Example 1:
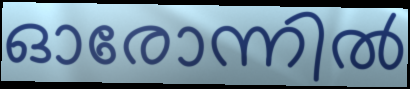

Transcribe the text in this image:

ഓരോന്നിൽ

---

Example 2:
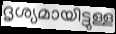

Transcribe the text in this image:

ദൃശ്യമായിട്ടുള്ള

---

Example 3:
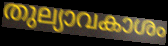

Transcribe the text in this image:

തുല്യാവകാശം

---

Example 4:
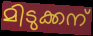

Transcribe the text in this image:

മിടുക്കന്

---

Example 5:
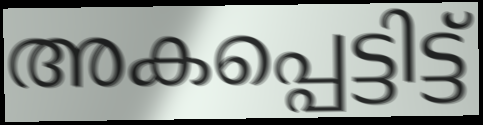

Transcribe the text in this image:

അകപ്പെട്ടിട്ട്